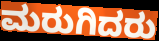
ಮರುಗಿದರು